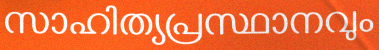
സാഹിത്യപ്രസ്ഥാനവും